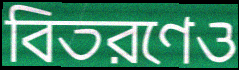
বিতরণেও